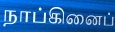
நாப்கினைப்